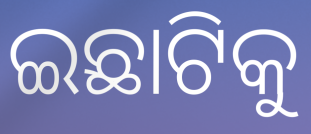
ଇଛାଟିକୁ